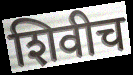
शिवीच